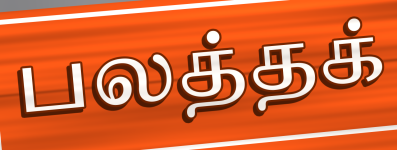
பலத்தக்